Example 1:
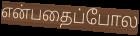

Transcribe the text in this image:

என்பதைப்போல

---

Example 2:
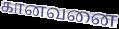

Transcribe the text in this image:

கானவனை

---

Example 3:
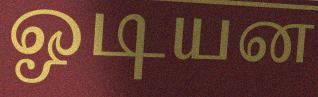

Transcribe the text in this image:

ஓடியன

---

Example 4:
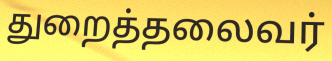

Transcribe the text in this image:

துறைத்தலைவர்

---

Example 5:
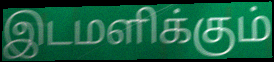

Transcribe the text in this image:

இடமளிக்கும்